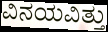
ವಿನಯವಿತ್ತು